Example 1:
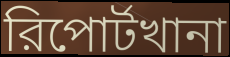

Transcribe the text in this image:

রিপোর্টখানা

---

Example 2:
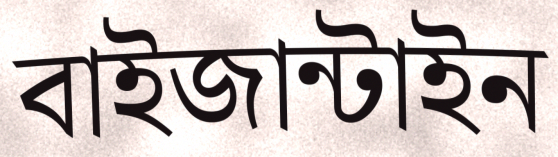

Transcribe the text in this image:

বাইজান্টাইন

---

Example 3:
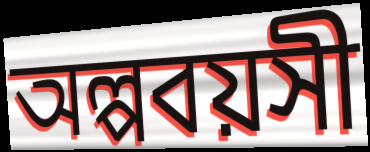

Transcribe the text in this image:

অল্পবয়সী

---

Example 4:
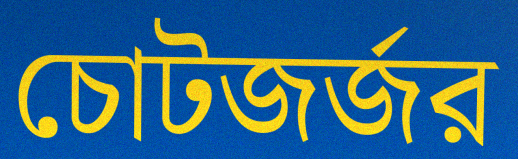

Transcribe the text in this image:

চোটজর্জর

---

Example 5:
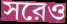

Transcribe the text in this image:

সরেও